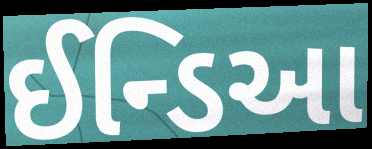
ઈન્ડિઆ